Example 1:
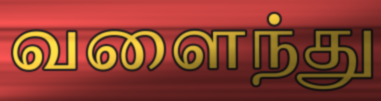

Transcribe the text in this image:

வளைந்து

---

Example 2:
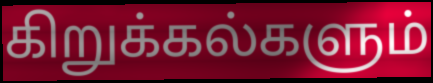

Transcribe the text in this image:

கிறுக்கல்களும்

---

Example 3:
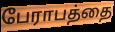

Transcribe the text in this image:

பேராபத்தை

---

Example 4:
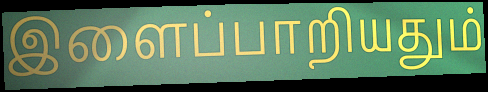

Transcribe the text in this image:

இளைப்பாறியதும்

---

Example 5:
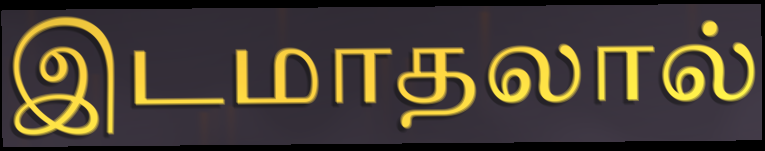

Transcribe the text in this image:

இடமாதலால்